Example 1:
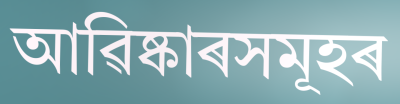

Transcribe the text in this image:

আৱিষ্কাৰসমূহৰ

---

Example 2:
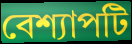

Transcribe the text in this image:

বেশ্যাপটি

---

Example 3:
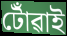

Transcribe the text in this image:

টোঁৱাই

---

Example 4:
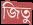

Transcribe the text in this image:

জিতু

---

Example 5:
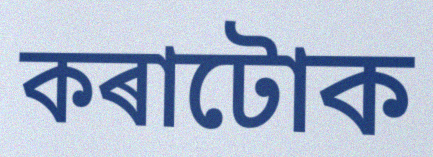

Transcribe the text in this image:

কৰাটোক